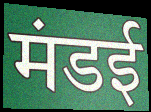
मंडई